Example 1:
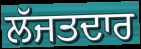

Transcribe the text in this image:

ਲੱਜਤਦਾਰ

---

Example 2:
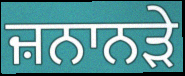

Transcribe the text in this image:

ਜ਼ਨਾਨੜੇ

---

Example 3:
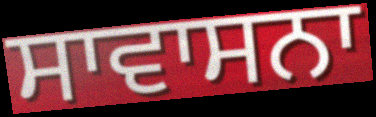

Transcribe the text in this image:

ਸਾਵਾਸਨਾ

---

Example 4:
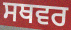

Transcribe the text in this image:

ਸਥਵਰ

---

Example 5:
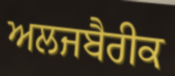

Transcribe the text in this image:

ਅਲਜਬੈਰੀਕ